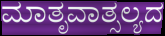
ಮಾತೃವಾತ್ಸಲ್ಯದ